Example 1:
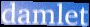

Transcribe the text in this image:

damlet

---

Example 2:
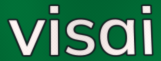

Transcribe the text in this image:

visai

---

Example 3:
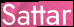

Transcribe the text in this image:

Sattar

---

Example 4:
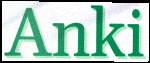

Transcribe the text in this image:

Anki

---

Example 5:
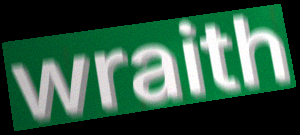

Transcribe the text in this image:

wraith